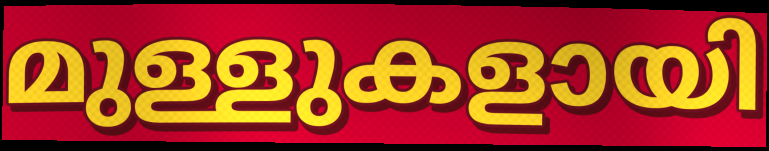
മുള്ളുകളായി